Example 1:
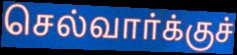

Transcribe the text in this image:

செல்வார்க்குச்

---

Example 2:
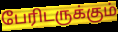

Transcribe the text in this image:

பேரிடருக்கும்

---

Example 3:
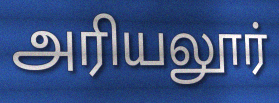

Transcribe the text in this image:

அரியலூர்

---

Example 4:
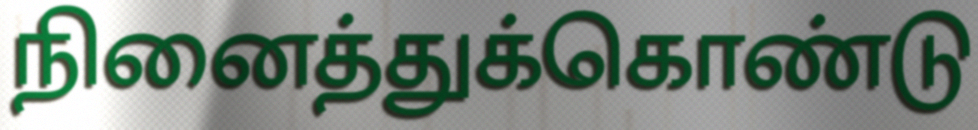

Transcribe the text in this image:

நினைத்துக்கொண்டு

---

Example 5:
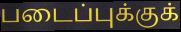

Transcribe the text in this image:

படைப்புக்குக்